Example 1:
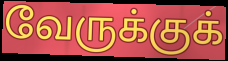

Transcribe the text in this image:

வேருக்குக்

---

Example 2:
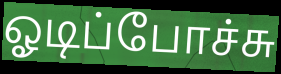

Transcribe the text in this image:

ஓடிப்போச்சு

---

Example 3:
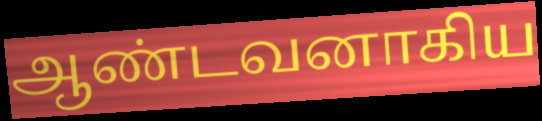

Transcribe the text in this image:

ஆண்டவனாகிய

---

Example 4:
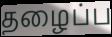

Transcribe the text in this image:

தழைப்ப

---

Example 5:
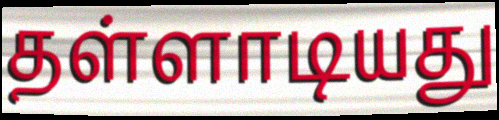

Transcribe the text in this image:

தள்ளாடியது